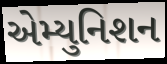
એમ્યુનિશન